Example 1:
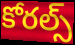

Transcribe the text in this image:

కోరల్స్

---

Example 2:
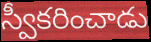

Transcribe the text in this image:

స్వీకరించాడు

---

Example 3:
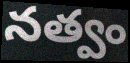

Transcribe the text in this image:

నత్వం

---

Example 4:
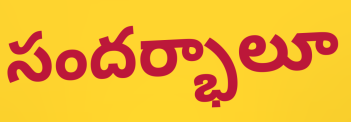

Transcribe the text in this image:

సందర్భాలూ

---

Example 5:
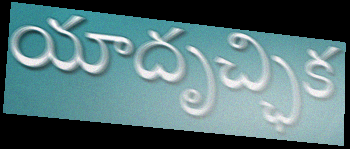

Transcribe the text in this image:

యాదృచ్ఛిక